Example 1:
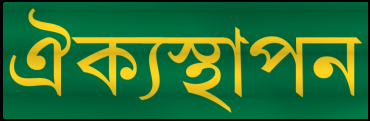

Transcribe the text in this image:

ঐক্যস্থাপন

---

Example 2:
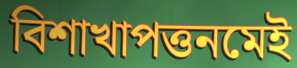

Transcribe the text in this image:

বিশাখাপত্তনমেই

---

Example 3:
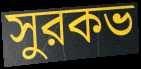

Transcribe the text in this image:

সুরকভ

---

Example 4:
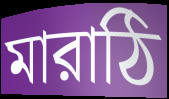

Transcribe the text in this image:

মারাঠি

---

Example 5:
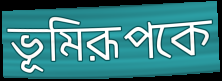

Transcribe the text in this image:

ভূমিরূপকে